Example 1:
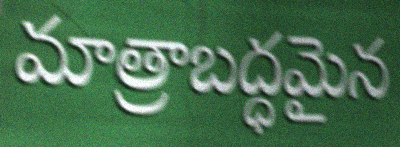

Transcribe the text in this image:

మాత్రాబద్ధమైన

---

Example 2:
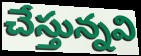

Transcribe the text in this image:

చేస్తున్నవి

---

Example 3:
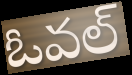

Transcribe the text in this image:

ఓవల్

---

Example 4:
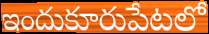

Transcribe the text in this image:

ఇందుకూరుపేటలో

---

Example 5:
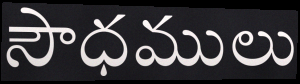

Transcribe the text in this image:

సౌధములు